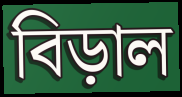
বিড়াল